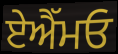
ਏਐੱਮਓ